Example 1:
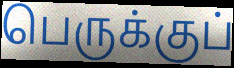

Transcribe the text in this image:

பெருக்குப்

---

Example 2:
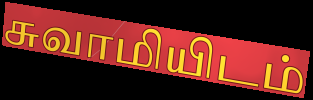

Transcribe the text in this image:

சுவாமியிடம்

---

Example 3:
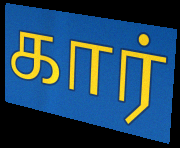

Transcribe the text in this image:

கார்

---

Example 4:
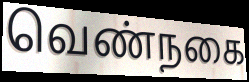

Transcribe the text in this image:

வெண்நகை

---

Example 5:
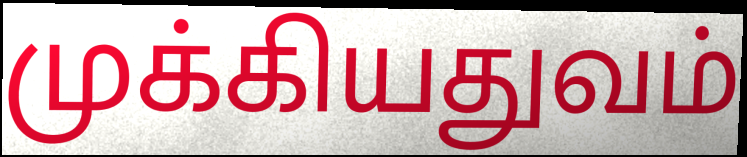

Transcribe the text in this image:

முக்கியதுவம்